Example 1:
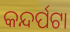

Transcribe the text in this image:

କନ୍ଦର୍ପଟା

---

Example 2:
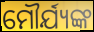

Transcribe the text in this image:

ମୌର୍ଯ୍ୟଙ୍କ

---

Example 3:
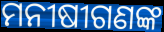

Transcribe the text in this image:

ମନୀଷୀଗଣଙ୍କ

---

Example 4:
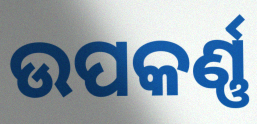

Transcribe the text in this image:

ଉପକର୍ଣ୍ଣ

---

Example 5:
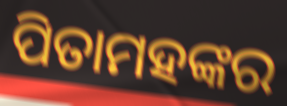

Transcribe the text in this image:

ପିତାମହଙ୍କର